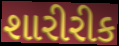
શારીરીક